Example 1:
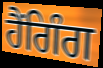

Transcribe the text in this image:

ਹੈਂਗਿੰਗ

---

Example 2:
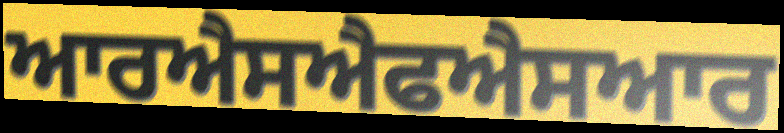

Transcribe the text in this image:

ਆਰਐਸਐਫਐਸਆਰ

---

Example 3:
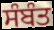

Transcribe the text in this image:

ਸੰਬੰਤ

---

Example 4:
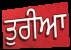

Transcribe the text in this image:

ਤੁਰੀਆ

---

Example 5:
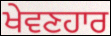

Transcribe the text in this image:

ਖੇਵਣਹਾਰ